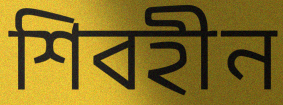
শিবহীন